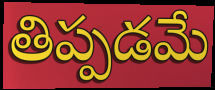
తిప్పడమే